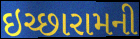
ઇચ્છારામની